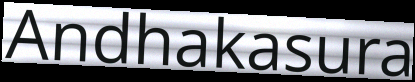
Andhakasura